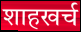
शाहखर्च